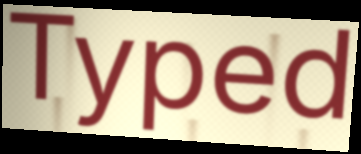
Typed